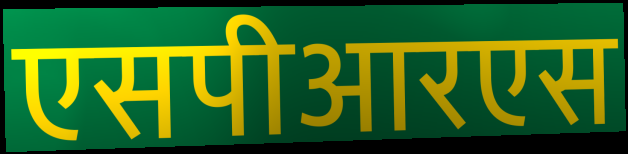
एसपीआरएस